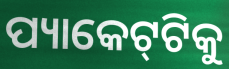
ପ୍ୟାକେଟ୍‌ଟିକୁ